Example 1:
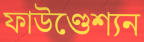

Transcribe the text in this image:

ফাউণ্ডেশ্যন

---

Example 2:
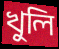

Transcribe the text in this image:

খুলি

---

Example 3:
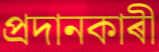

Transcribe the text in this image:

প্ৰদানকাৰী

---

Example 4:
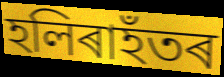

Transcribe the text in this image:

হলিৰাহঁতৰ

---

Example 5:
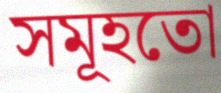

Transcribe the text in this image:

সমূহতো